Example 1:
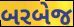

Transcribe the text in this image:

બરબેજ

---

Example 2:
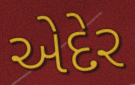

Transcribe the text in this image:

એદેર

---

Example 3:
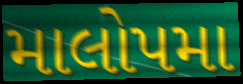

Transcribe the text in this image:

માલોપમા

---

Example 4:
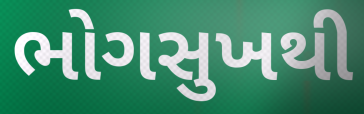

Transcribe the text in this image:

ભોગસુખથી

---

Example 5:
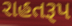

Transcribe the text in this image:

રાહતરૂપ